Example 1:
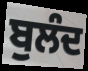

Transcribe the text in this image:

ਬੁਲੰਦ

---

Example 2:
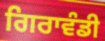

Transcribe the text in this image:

ਗਿਰਾਵੰਡੀ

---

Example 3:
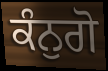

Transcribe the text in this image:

ਕੰਨੁਗੋ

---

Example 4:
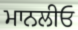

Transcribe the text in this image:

ਮਾਨਲੀਓ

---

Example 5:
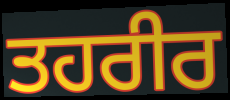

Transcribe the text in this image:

ਤਹਰੀਰ